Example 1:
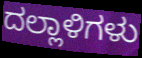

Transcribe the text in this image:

ದಲ್ಲಾಳಿಗಳು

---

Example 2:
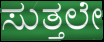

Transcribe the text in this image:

ಸುತ್ತಲೇ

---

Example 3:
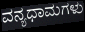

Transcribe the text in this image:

ವನ್ಯಧಾಮಗಳು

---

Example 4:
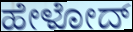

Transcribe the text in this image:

ಹೇಳೋದ್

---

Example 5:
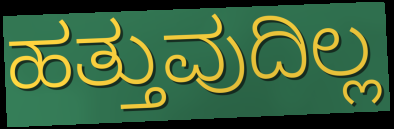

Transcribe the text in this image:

ಹತ್ತುವುದಿಲ್ಲ